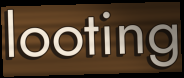
looting